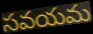
సవయమ